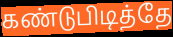
கண்டுபிடித்தே